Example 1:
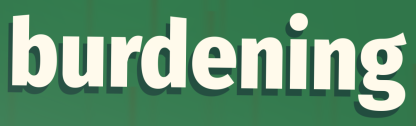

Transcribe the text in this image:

burdening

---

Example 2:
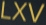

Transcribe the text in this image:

LXV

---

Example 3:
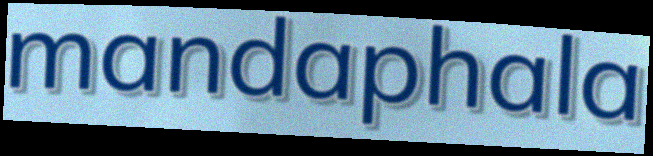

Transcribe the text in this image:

mandaphala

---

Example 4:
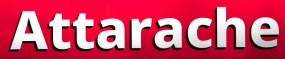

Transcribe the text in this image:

Attarache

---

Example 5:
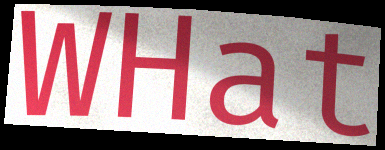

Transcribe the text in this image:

WHat